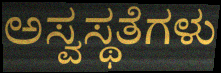
ಅಸ್ವಸ್ಥತೆಗಳು